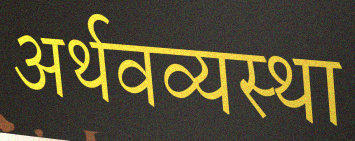
अर्थवव्यस्था